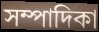
সম্পাদিকা